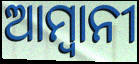
ଆମ୍ବାନୀ